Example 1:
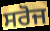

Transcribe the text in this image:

ਸਰੋਜ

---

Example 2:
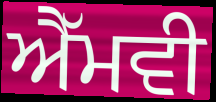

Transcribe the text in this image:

ਐੱਮਵੀ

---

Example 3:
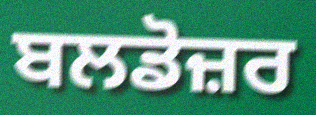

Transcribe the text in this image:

ਬਲਡੋਜ਼ਰ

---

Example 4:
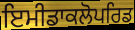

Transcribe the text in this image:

ਇਮੀਡਾਕਲੋਪਰਿਡ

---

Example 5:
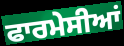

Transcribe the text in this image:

ਫਾਰਮੇਸੀਆਂ